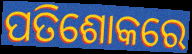
ପତିଶୋକରେ